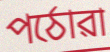
পঠোৱা